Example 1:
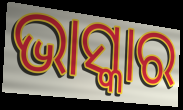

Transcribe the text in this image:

ଭାସ୍କାର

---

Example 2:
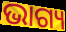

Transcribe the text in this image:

ଭାଗ୍ୟ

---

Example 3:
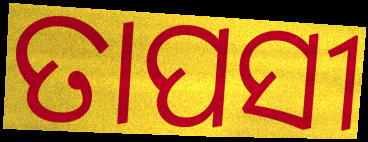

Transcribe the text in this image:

ତାପସୀ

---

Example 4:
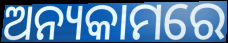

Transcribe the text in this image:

ଅନ୍ୟକାମରେ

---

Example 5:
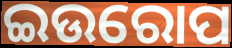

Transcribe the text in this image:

ଇଉରୋପ